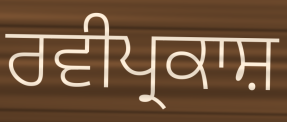
ਰਵੀਪ੍ਰਕਾਸ਼